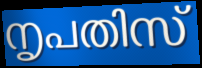
നൃപതിസ്